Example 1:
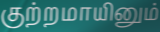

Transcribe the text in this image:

குற்றமாயினும்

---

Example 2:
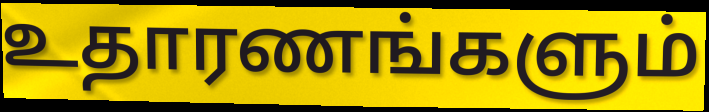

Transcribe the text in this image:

உதாரணங்களும்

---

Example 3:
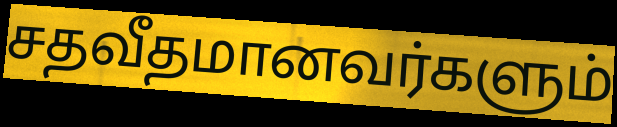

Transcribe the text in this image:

சதவீதமானவர்களும்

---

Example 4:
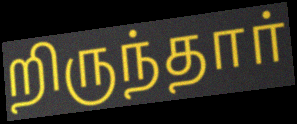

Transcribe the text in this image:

றிருந்தார்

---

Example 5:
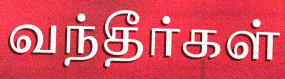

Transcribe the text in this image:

வந்தீர்கள்